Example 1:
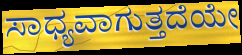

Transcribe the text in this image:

ಸಾಧ್ಯವಾಗುತ್ತದೆಯೇ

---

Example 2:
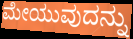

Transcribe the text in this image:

ಮೇಯುವುದನ್ನು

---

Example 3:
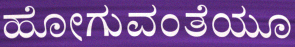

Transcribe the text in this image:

ಹೋಗುವಂತೆಯೂ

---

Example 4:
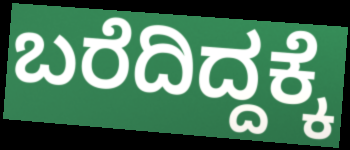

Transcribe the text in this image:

ಬರೆದಿದ್ದಕ್ಕೆ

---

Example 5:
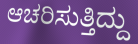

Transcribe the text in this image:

ಆಚರಿಸುತ್ತಿದ್ದು